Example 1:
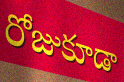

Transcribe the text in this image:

రోజుకూడా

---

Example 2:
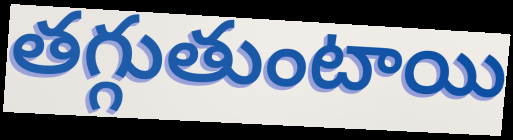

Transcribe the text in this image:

తగ్గుతుంటాయి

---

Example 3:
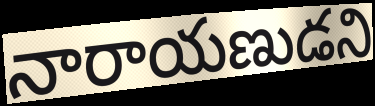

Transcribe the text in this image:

నారాయణుడని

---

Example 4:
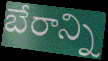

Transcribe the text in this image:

బేరాన్ని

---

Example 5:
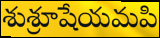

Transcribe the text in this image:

శుశ్రూషేయమపి